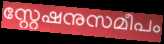
സ്റ്റേഷനുസമീപം